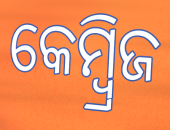
କେମ୍ବ୍ରିଜ